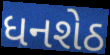
ધનશેઠ